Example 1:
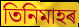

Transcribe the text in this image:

তিনিমাহৰ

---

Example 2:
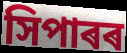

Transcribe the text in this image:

সিপাৰৰ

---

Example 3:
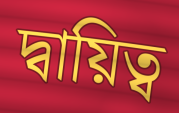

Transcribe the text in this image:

দ্বায়িত্ব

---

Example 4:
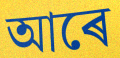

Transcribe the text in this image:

আৰে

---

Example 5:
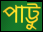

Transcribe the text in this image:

পাট্টু